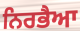
ਨਿਰਭੈਆ